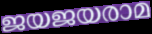
ജയജയരാമ